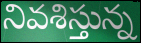
నివశిస్తున్న